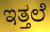
ಇತ್ತಲೆ